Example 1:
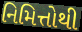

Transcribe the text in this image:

નિમિત્તોથી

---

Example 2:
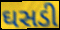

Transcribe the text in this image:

ઘસડી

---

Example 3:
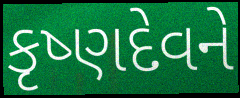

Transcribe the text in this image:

કૃષ્ણદેવને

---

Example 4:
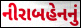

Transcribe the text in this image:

નીરાબહેનનું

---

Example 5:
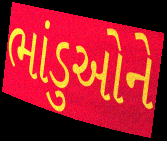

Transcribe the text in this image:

ભાંડુઓને